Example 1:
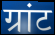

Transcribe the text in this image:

ग्रांट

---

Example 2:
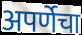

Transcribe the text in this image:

अपर्णेचा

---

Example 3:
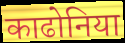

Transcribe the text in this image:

काढोनिया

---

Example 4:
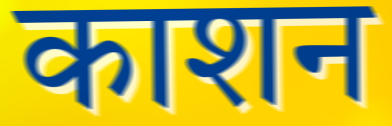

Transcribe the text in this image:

काशन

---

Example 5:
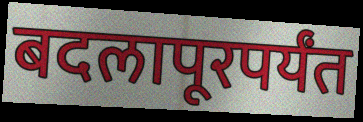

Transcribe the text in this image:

बदलापूरपर्यंत